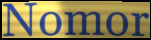
Nomor